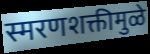
स्मरणशक्तीमुळे